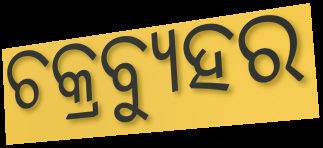
ଚକ୍ରବ୍ୟୁହର